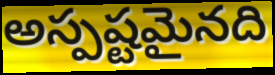
అస్పష్టమైనది